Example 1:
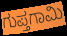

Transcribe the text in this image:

ಗುಪ್ತಗಾಮಿ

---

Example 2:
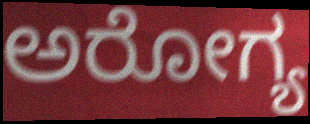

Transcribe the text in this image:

ಅರೋಗ್ಯ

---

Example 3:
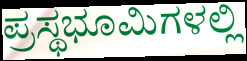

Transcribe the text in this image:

ಪ್ರಸ್ಥಭೂಮಿಗಳಲ್ಲಿ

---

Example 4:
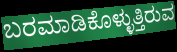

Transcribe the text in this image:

ಬರಮಾಡಿಕೊಳ್ಳುತ್ತಿರುವ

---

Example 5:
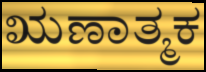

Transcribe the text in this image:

ಋಣಾತ್ಮಕ